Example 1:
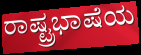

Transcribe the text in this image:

ರಾಷ್ಟ್ರಭಾಷೆಯ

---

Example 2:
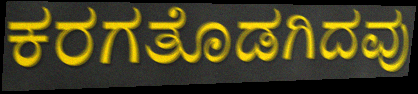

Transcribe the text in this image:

ಕರಗತೊಡಗಿದವು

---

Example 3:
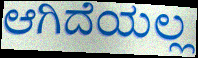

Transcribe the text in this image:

ಆಗಿದೆಯಲ್ಲ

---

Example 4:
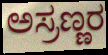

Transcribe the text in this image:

ಅಸ್ರಣ್ಣರ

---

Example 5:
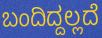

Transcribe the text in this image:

ಬಂದಿದ್ದಲ್ಲದೆ